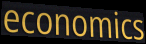
economics